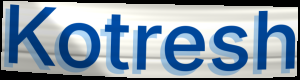
Kotresh